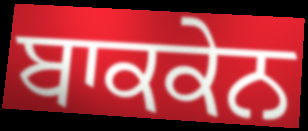
ਬਾਕਕੇਨ